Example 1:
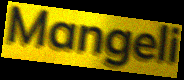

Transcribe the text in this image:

Mangeli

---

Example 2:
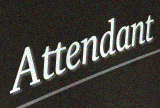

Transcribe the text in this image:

Attendant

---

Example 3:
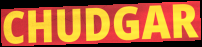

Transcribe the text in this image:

CHUDGAR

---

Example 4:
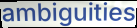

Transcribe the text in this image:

ambiguities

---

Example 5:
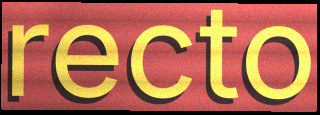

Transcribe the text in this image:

recto